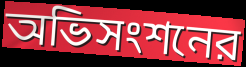
অভিসংশনের